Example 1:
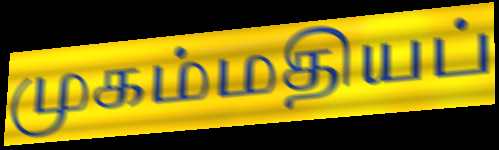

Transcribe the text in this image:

முகம்மதியப்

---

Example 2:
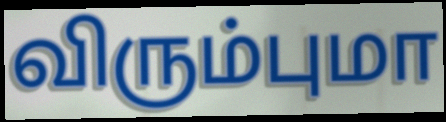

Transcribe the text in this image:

விரும்புமா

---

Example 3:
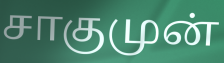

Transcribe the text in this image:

சாகுமுன்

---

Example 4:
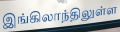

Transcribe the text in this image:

இங்கிலாந்திலுள்ள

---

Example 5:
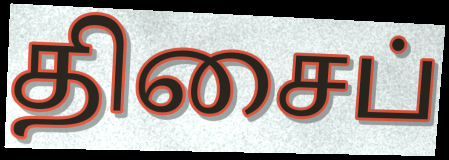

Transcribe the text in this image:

திசைப்